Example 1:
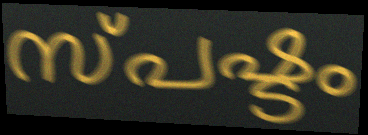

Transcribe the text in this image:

സ്പഷ്ടം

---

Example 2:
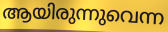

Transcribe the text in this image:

ആയിരുന്നുവെന്ന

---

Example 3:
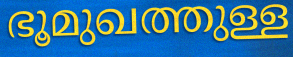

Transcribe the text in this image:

ഭൂമുഖത്തുള്ള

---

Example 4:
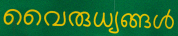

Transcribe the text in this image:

വൈരുധ്യങ്ങൾ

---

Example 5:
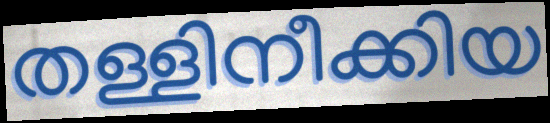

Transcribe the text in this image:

തള്ളിനീക്കിയ